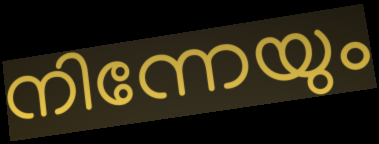
നിന്നേയും